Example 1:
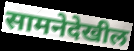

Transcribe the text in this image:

सामनेदेखील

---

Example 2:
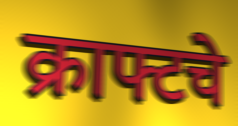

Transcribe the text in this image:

क्राफ्टचे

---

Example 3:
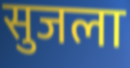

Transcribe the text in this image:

सुजला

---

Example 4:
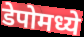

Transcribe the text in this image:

डेपोमध्ये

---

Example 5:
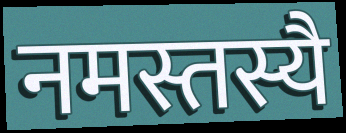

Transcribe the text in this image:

नमस्तस्यै